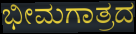
ಭೀಮಗಾತ್ರದ